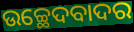
ଉଚ୍ଛେଦବାଦର